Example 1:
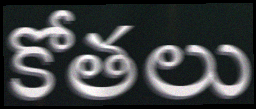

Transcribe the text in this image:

కోతలు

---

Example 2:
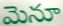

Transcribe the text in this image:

మెనూ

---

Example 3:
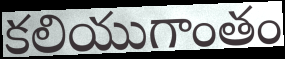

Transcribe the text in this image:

కలియుగాంతం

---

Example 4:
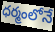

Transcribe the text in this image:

ధర్మంలోనే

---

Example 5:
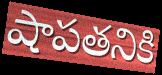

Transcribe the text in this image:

షాపతనికి